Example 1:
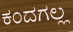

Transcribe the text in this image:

ಕಂದಗಲ್ಲ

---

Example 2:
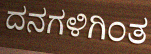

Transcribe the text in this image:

ದನಗಳಿಗಿಂತ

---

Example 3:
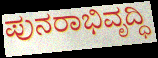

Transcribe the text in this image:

ಪುನರಾಭಿವೃದ್ಧಿ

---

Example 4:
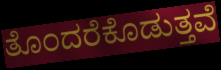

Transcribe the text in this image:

ತೊಂದರೆಕೊಡುತ್ತವೆ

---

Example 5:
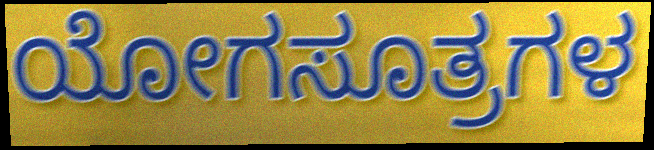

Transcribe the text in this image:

ಯೋಗಸೂತ್ರಗಳ